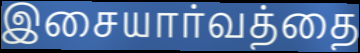
இசையார்வத்தை